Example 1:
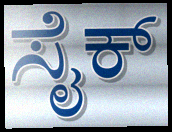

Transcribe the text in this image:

ಸೈಕ್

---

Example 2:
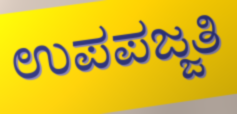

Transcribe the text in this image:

ಉಪಪಜ್ಜತಿ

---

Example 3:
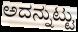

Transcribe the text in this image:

ಅದನ್ನುಟ್ಟು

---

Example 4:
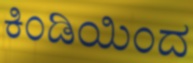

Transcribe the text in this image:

ಕಿಂಡಿಯಿಂದ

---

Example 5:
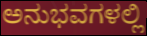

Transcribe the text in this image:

ಅನುಭವಗಳಲ್ಲಿ